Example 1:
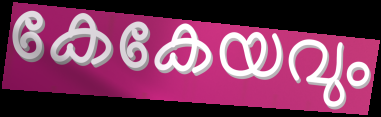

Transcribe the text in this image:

കേകേയവും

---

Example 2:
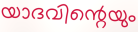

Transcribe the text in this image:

യാദവിന്റെയും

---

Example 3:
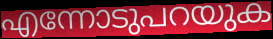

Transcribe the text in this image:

എന്നോടുപറയുക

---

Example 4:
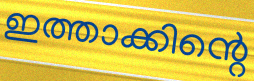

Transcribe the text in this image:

ഇത്താക്കിന്റെ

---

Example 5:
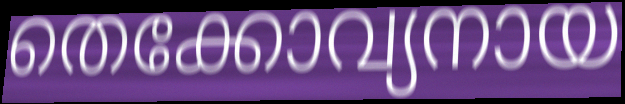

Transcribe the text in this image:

തെക്കോവ്യനായ